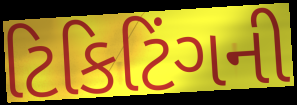
ટિકિટિંગની